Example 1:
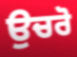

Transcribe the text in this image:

ਉਚਰੋ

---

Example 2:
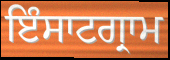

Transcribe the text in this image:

ਇੰਸਾਟਗ੍ਰਾਮ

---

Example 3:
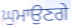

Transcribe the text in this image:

ਘੁਮਾਉਣਗੇ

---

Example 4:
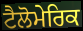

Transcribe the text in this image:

ਟੈਲੋਮੇਰਿਕ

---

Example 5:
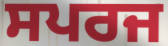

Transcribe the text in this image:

ਸਪਰਜ